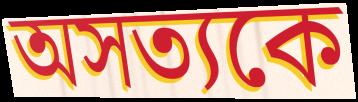
অসত্যকে